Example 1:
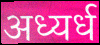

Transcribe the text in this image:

अध्यर्ध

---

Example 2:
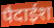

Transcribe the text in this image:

पैदाईश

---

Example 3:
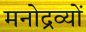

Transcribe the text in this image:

मनोद्रव्यों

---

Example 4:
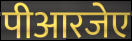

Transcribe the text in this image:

पीआरजेए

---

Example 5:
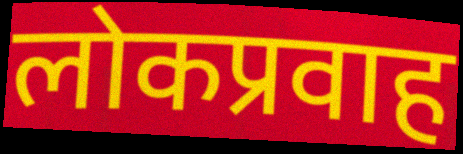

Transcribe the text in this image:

लोकप्रवाह